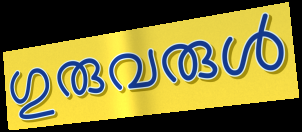
ഗുരുവരുൾ